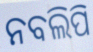
ନବଲିପି